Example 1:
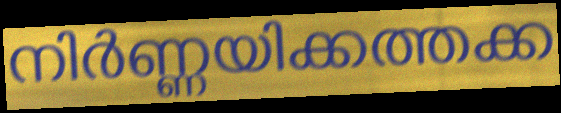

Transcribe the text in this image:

നിർണ്ണയിക്കത്തക്ക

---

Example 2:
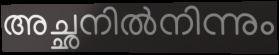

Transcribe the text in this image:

അച്ഛനിൽനിന്നും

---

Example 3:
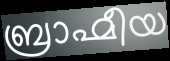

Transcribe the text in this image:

ബ്രാഹ്മീയ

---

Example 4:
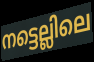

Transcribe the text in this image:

നട്ടെല്ലിലെ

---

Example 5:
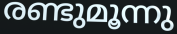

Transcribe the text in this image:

രണ്ടുമൂന്നു